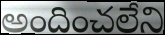
అందించలేని